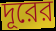
দূরের